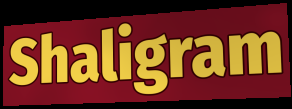
Shaligram